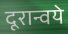
दूरान्वये